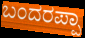
ಬಂದರಪ್ಪಾ